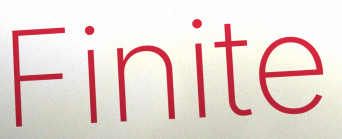
Finite